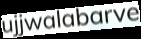
ujjwalabarve